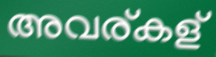
അവര്കള്